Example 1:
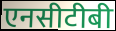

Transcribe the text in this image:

एनसीटीबी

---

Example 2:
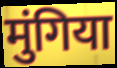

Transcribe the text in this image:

मुंगिया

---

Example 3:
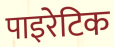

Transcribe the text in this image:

पाइरेटिक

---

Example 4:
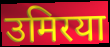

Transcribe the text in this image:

उमिरया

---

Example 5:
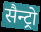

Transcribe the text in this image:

सैन्ट्रो